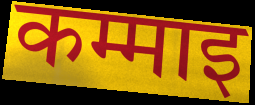
कम्माइ